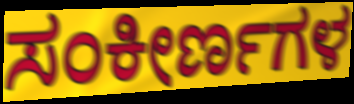
ಸಂಕೀರ್ಣಗಳ